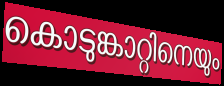
കൊടുങ്കാറ്റിനെയും